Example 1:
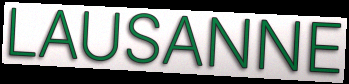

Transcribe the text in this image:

LAUSANNE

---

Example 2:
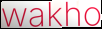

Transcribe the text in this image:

wakho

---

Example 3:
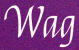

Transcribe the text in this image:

Wag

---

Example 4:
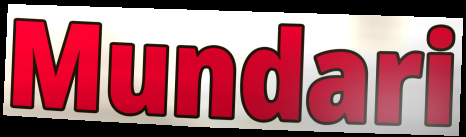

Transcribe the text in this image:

Mundari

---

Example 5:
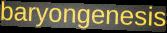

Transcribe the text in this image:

baryongenesis